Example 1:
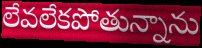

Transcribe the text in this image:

లేవలేకపోతున్నాను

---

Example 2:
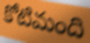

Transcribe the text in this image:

కోటిమంది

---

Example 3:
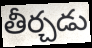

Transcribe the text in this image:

తీర్చడు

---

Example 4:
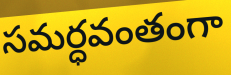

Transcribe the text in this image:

సమర్ధవంతంగా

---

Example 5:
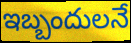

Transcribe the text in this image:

ఇబ్బందులనే